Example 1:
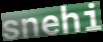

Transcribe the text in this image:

snehi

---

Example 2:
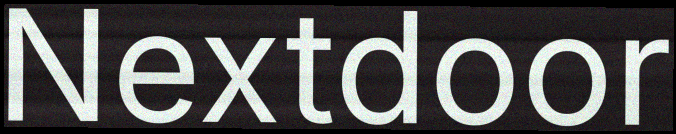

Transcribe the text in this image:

Nextdoor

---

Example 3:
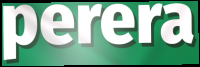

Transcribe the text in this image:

perera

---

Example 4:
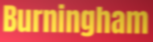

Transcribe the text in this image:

Burningham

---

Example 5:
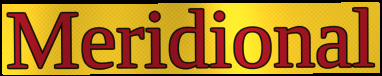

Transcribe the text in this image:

Meridional